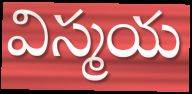
విస్మయ